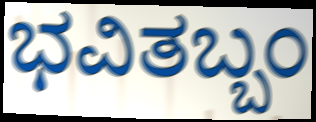
ಭವಿತಬ್ಬಂ